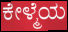
ಕೇಳ್ಮೆಯ